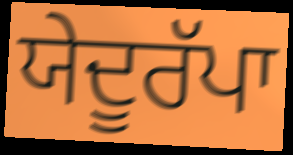
ਯੇਦੂਰੱਪਾ